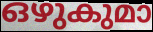
ഒഴുകുമാ